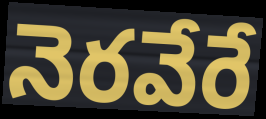
నెరవేరే